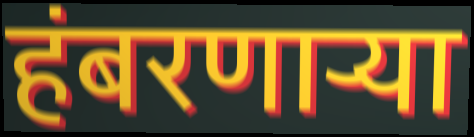
हंबरणाऱ्या